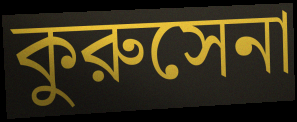
কুরুসেনা